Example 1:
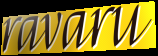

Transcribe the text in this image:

ravaru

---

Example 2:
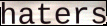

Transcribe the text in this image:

haters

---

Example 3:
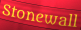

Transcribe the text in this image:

Stonewall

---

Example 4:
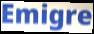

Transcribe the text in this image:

Emigre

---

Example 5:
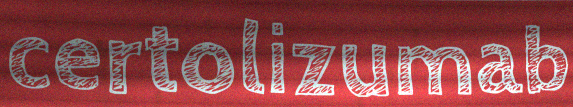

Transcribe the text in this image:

certolizumab